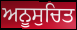
ਅਨੂਸੁਚਿਤ